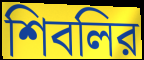
শিবলির